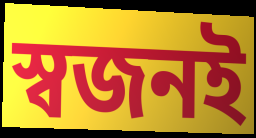
স্বজনই